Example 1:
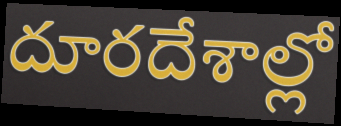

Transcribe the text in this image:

దూరదేశాల్లో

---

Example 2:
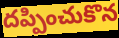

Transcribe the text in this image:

దప్పించుకొన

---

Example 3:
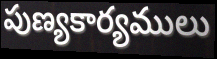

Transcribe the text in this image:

పుణ్యకార్యములు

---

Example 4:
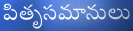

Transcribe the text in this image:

పితృసమానులు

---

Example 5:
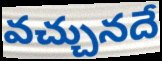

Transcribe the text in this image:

వచ్చునదే